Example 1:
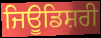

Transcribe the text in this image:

ਜਿਊਡਿਸ਼ਰੀ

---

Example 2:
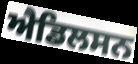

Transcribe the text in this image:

ਐਡਿਲਸਨ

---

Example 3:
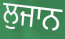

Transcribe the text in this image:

ਲੁਜਾਨ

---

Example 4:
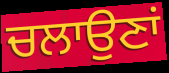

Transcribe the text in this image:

ਚਲਾਉਣਾਂ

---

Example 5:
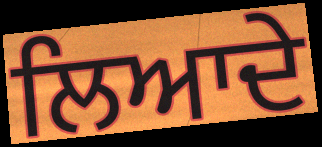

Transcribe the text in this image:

ਲਿਆਦੇ